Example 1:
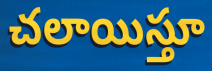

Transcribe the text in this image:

చలాయిస్తూ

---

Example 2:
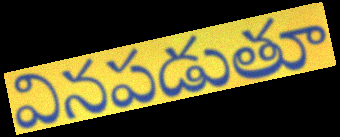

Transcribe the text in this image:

వినపడుతూ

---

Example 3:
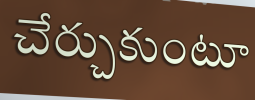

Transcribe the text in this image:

చేర్చుకుంటూ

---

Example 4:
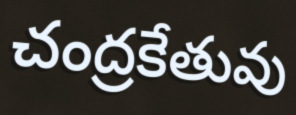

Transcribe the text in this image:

చంద్రకేతువు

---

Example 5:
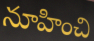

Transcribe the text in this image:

నూహించి